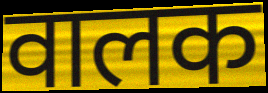
वालक